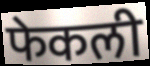
फेकली